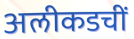
अलीकडचीं